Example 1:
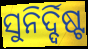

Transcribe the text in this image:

ସୁନିର୍ଦ୍ଦିଷ୍ଟ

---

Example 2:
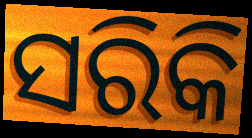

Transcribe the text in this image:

ସରିକି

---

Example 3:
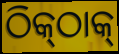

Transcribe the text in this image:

ଠିକ୍‌ଠାକ୍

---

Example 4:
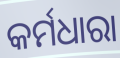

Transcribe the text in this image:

କର୍ମଧାରା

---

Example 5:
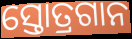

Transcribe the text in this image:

ସ୍ତୋତ୍ରଗାନ